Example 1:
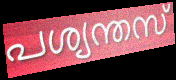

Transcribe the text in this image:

പശ്യന്തസ്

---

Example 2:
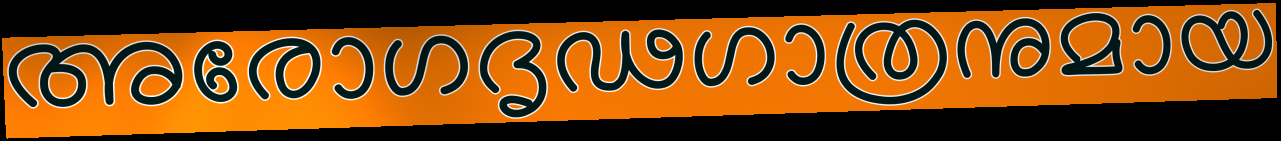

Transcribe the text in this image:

അരോഗദൃഢഗാത്രനുമായ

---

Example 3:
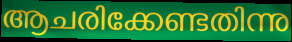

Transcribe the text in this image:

ആചരിക്കേണ്ടതിന്നു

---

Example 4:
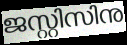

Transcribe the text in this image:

ജസ്റ്റിസിനു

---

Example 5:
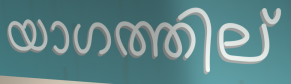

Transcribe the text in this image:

യാഗത്തില്